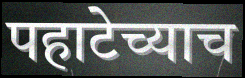
पहाटेच्याच